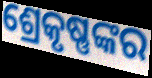
ଶ୍ରେକୃଷ୍ଣଙ୍କର